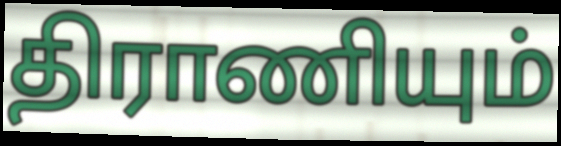
திராணியும்